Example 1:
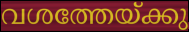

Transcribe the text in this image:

വശത്തേയ്ക്കു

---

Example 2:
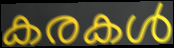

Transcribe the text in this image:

കരകൾ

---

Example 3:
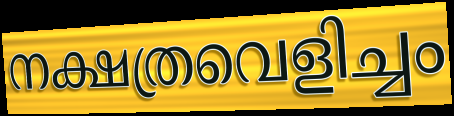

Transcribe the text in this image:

നക്ഷത്രവെളിച്ചം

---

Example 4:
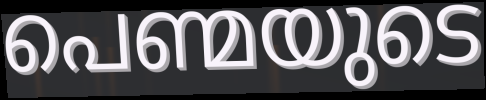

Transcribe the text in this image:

പെണ്മയുടെ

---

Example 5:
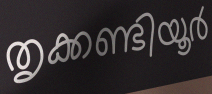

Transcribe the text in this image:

തൃക്കണ്ടിയൂർ